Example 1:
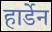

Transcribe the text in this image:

हार्डेन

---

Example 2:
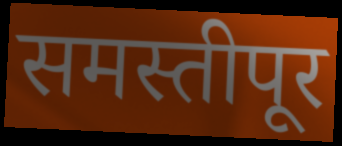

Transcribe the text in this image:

समस्तीपूर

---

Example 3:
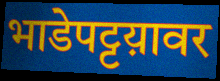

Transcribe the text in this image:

भाडेपट्टय़ावर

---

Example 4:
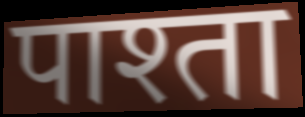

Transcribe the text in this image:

पाश्ता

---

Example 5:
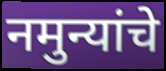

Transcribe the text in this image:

नमुन्यांचे